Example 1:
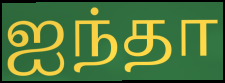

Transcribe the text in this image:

ஐந்தா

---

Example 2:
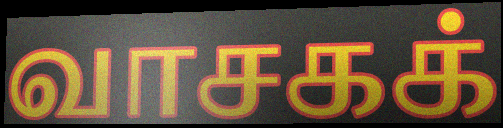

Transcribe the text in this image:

வாசகக்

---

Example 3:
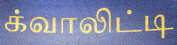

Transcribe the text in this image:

க்வாலிட்டி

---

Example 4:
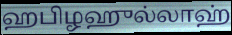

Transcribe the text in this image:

ஹபிழஹுல்லாஹ்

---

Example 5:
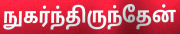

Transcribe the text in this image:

நுகர்ந்திருந்தேன்